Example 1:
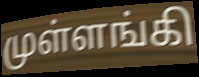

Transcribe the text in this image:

முள்ளங்கி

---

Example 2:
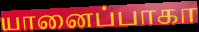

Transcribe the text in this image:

யானைப்பாகா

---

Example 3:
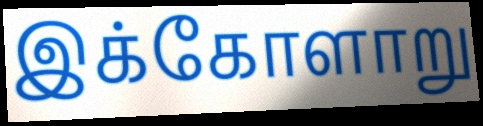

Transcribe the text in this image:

இக்கோளாறு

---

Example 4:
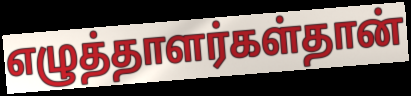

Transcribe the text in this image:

எழுத்தாளர்கள்தான்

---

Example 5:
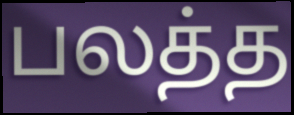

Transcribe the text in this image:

பலத்த